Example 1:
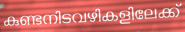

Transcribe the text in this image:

കുണ്ടനിടവഴികളിലേക്ക്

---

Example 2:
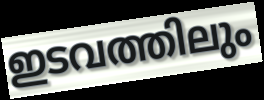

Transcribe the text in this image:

ഇടവത്തിലും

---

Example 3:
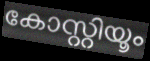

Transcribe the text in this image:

കോസ്റ്റിയൂം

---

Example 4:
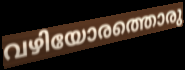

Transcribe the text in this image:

വഴിയോരത്തൊരു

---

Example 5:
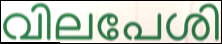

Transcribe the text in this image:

വിലപേശി